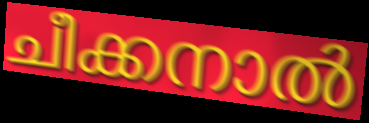
ചീക്കനാൽ